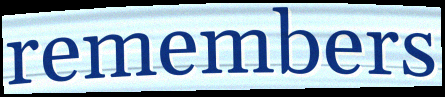
remembers